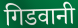
गिडवानी